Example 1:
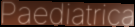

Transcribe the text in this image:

Paediatrica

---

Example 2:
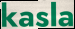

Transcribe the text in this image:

kasla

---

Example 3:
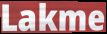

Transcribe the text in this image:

Lakme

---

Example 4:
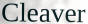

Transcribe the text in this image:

Cleaver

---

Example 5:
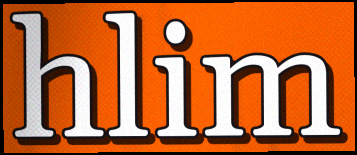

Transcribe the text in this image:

hlim